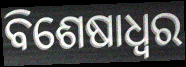
ବିଶେଷାଧ୍ଵର